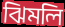
ঝিমলি